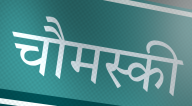
चौमस्की